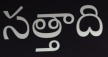
సత్తాది